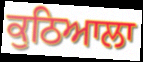
ਕੁਠਿਆਲਾ